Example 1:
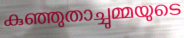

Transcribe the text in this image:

കുഞ്ഞുതാച്ചുമ്മയുടെ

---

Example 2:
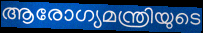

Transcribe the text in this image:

ആരോഗ്യമന്ത്രിയുടെ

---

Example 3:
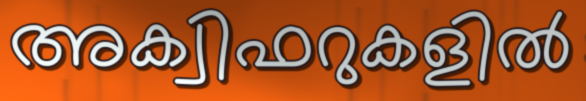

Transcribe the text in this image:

അക്വിഫറുകളിൽ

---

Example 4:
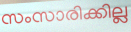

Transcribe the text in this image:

സംസാരിക്കില്ല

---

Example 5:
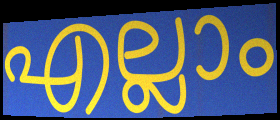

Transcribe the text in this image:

എല്ലാം